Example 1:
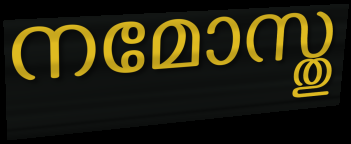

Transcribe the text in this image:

നമോസ്തു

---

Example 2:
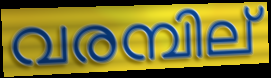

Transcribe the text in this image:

വരമ്പില്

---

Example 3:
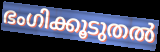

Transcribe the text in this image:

ഭംഗിക്കൂടുതൽ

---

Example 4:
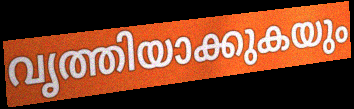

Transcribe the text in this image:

വൃത്തിയാക്കുകയും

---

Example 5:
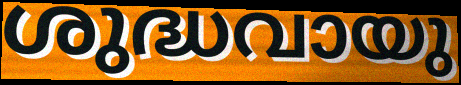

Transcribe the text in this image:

ശുദ്ധവായു